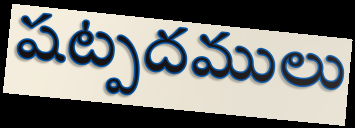
షట్పదములు